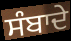
ਸੰਬਾਦੇ